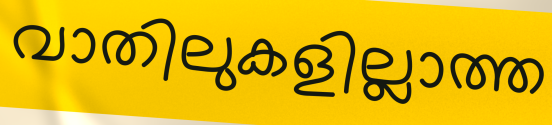
വാതിലുകളില്ലാത്ത